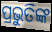
ପ୍ରଭୁତିଙ୍କ